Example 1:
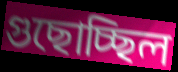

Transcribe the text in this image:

গুছোচ্ছিল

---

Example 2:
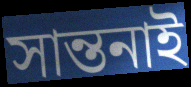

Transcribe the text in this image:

সান্তনাই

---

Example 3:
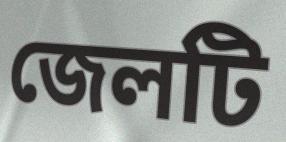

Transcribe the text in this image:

জেলটি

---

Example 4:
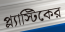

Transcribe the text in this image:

প্ল্যাস্টিকের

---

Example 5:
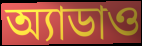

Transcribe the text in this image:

অ্যাডাও